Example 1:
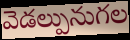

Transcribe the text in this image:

వెడల్పునుగల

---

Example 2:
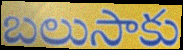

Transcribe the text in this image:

బలుసాకు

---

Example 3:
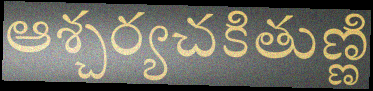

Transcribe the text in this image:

ఆశ్చర్యచకితుణ్ణి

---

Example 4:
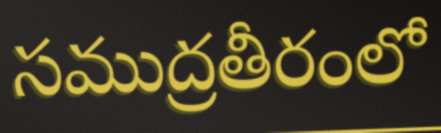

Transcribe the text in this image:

సముద్రతీరంలో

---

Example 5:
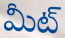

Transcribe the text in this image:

మీట్